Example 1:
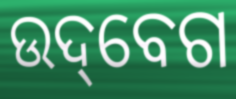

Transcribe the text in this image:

ଉଦ୍‌ବେଗ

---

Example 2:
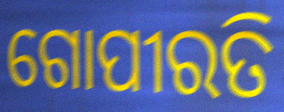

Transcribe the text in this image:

ଗୋପୀରତି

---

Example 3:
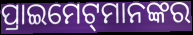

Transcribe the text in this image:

ପ୍ରାଇମେଟ୍‌ମାନଙ୍କର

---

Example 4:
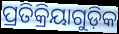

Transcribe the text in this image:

ପ୍ରତିକ୍ରିୟାଗୁଡ଼ିକ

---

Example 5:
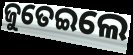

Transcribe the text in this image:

ଜୁତେଇଲେ